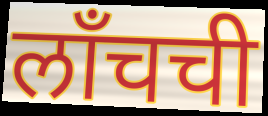
लाँचची